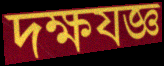
দক্ষযজ্ঞ